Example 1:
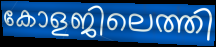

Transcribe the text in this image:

കോളജിലെത്തി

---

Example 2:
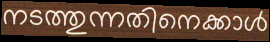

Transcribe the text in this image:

നടത്തുന്നതിനെക്കാൾ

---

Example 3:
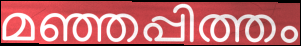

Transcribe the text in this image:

മഞ്ഞപ്പിത്തം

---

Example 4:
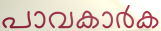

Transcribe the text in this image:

പാവകാർക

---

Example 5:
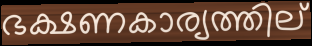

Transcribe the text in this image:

ഭക്ഷണകാര്യത്തില്